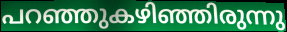
പറഞ്ഞുകഴിഞ്ഞിരുന്നു